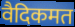
वैदिकमत